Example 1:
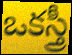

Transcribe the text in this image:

ఒకస్త్రీ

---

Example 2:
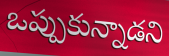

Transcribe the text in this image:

ఒప్పుకున్నాడని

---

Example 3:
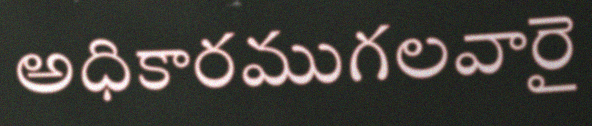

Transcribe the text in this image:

అధికారముగలవారై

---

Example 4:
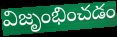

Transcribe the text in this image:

విజృంభించడం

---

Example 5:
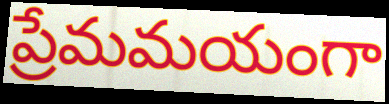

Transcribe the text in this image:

ప్రేమమయంగా